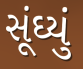
સૂંઘ્યું